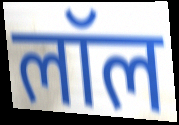
लॉल